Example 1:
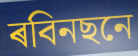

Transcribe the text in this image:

ৰবিনছনে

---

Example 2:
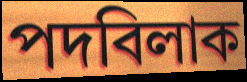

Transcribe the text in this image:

পদবিলাক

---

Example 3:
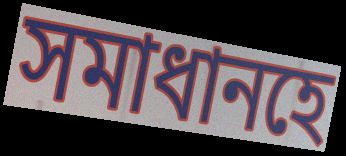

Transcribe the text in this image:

সমাধানহে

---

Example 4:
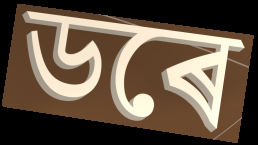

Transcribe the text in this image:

ডৰে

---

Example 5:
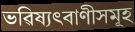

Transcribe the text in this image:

ভৱিষ্যৎবাণীসমূহ